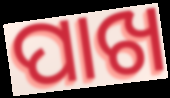
ପାଖ